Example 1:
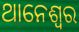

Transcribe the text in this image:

ଥାନେଶ୍ୱର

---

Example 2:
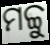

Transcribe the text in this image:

ମଚ୍ଚୁ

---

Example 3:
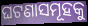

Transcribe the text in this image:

ଘଟଣାସମୂହକୁ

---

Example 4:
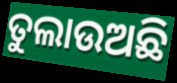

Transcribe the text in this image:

ତୁଲାଉଅଛି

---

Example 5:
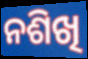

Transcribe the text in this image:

ନଶିଖି